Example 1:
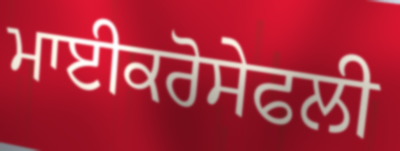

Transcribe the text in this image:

ਮਾਈਕਰੋਸੇਫਲੀ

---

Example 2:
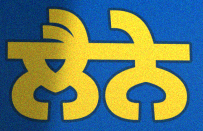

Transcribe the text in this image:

ਲੈਨੇ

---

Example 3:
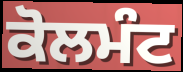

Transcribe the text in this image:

ਕੋਲਮੰਟ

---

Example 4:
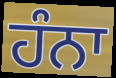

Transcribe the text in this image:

ਹੰਨਾ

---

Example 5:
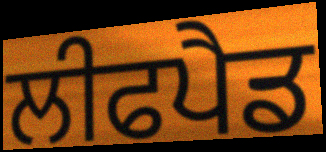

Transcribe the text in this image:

ਲੀਫਪੈਡ